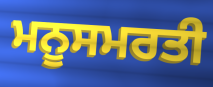
ਮਨੂਸਮਰਤੀ